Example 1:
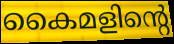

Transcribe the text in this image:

കൈമളിന്റെ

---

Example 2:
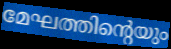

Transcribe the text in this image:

മേഘത്തിന്റെയും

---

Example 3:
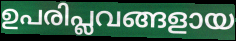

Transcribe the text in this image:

ഉപരിപ്ലവങ്ങളായ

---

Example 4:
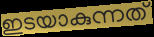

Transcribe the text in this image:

ഇടയാകുന്നത്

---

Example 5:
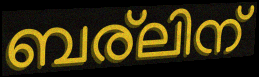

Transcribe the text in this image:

ബര്ലിന്